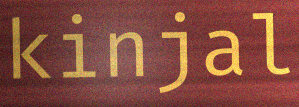
kinjal